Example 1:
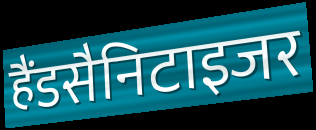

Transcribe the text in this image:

हैंडसैनिटाइजर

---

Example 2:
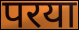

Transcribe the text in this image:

परया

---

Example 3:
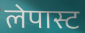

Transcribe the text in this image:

लेपास्ट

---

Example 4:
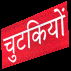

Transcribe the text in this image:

चुटकियों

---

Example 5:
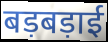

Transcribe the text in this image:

बड़बड़ाई